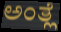
ಅಂತ್ಲೆ